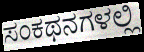
ಸಂಕಥನಗಳಲ್ಲಿ